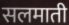
सलमाती